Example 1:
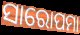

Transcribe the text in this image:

ସାରୋପମା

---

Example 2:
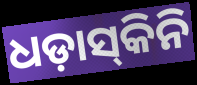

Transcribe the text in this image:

ଧଡ଼ାସ୍‌କିନି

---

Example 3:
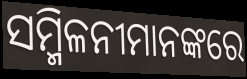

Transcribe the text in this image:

ସମ୍ମିଳନୀମାନଙ୍କରେ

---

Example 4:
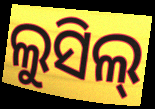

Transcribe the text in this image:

ଲୁସିଲ୍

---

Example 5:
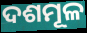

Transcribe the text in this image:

ଦଶମୂଳ